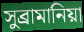
সুব্রামানিয়া